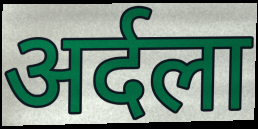
अर्दला